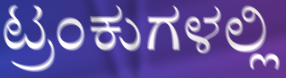
ಟ್ರಂಕುಗಳಲ್ಲಿ